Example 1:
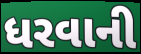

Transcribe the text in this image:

ધરવાની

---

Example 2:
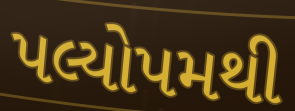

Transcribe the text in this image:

પલ્યોપમથી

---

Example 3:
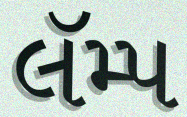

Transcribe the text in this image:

લૅમ્પ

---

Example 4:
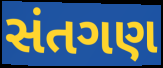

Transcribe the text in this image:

સંતગણ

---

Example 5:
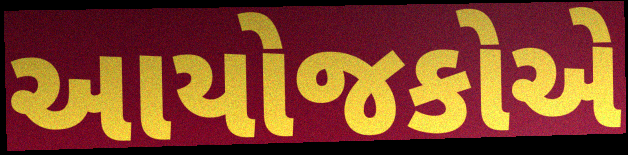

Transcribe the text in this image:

આયોજકોએ